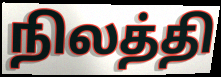
நிலத்தி